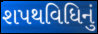
શપથવિધિનું